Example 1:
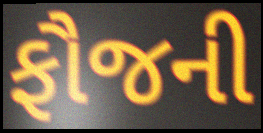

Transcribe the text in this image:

ફૌજની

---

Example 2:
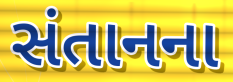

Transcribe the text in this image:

સંતાનના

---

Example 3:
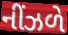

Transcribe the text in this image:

નીંઝળે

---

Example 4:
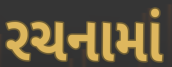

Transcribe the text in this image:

રચનામાં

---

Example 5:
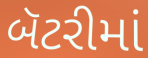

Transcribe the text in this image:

બૅટરીમાં